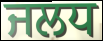
ਜਲਧ